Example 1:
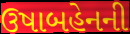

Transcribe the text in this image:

ઉષાબહેનની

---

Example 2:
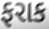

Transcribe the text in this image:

ફરાક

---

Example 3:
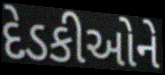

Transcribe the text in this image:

દેડકીઓને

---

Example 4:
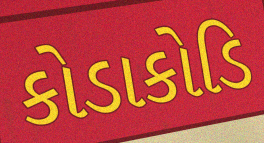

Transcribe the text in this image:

કોડાકોડિ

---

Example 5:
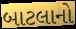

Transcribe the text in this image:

બાટલાનો